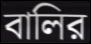
বালির